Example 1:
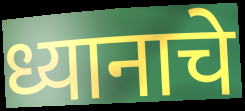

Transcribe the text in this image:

ध्यानाचे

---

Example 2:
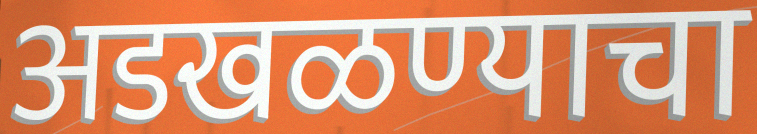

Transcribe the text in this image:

अडखळण्याचा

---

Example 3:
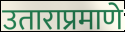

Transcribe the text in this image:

उताराप्रमाणे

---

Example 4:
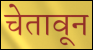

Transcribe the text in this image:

चेतावून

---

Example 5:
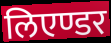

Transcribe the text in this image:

लिएण्डर